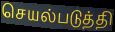
செயல்படுத்தி